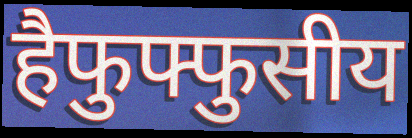
हैफुफ्फुसीय